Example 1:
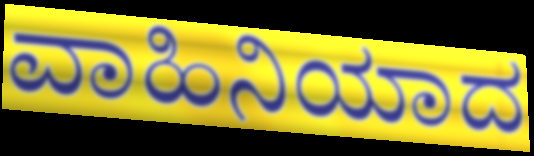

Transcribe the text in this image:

ವಾಹಿನಿಯಾದ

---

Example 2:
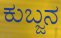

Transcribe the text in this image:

ಕುಬ್ಜನ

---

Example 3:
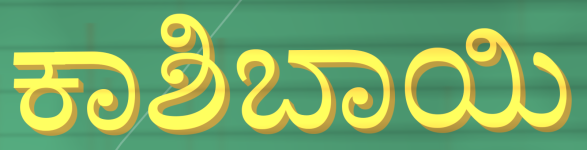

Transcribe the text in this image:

ಕಾಶಿಬಾಯಿ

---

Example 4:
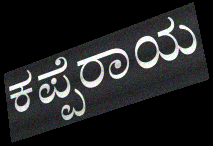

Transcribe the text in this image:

ಕಪ್ಪೆರಾಯ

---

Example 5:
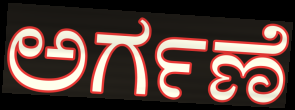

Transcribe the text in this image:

ಅರ್ಗಣೆ